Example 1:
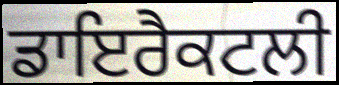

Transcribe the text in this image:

ਡਾਇਰੈਕਟਲੀ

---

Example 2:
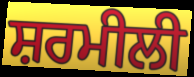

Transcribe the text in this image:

ਸ਼ਰਮੀਲੀ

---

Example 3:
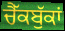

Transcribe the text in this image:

ਚੈੱਕਬੁੱਕਾਂ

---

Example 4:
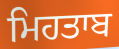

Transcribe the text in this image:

ਮਿਹਤਾਬ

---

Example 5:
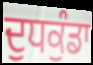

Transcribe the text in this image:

ਦੁਧਕੁੰਡਾ